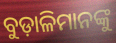
ବୁଡ଼ାଳିମାନଙ୍କୁ